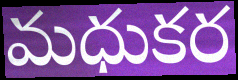
మధుకర